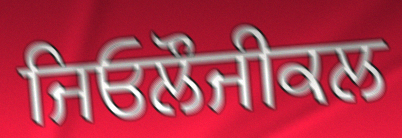
ਜਿਓਲੌਜੀਕਲ